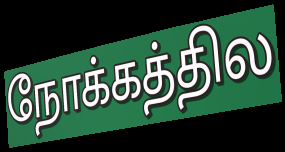
நோக்கத்தில